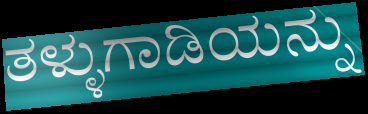
ತಳ್ಳುಗಾಡಿಯನ್ನು